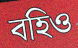
বহিও